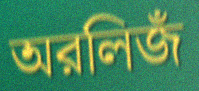
অরলিজঁ